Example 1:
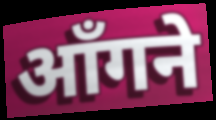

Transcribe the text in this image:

आँगने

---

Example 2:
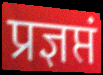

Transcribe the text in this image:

प्रज्ञप्तं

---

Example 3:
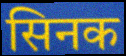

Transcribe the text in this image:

सिनक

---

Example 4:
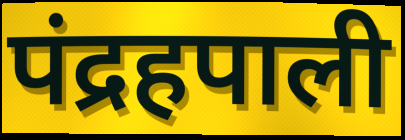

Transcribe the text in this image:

पंद्रहपाली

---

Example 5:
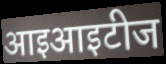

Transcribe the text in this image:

आइआइटीज